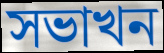
সভাখন